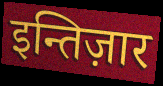
इन्तिज़ार